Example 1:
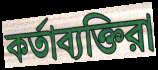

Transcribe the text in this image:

কর্তাব্যক্তিরা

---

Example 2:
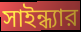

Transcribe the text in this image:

সাইন্ধ্যার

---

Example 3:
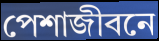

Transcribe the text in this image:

পেশাজীবনে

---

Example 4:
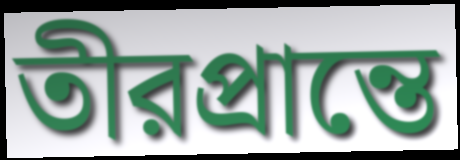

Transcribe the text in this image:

তীরপ্রান্তে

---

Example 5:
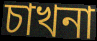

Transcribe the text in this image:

চাখনা